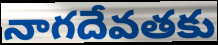
నాగదేవతకు